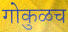
गोकुळच